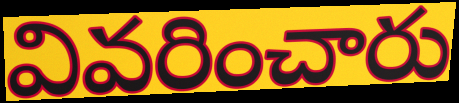
వివరించారు